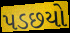
પડછયો